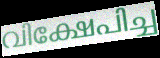
വിക്ഷേപിച്ച